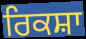
ਰਿਕਸ਼ਾ